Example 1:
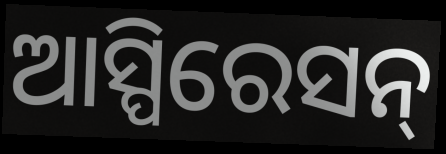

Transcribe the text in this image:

ଆସ୍ପିରେସନ୍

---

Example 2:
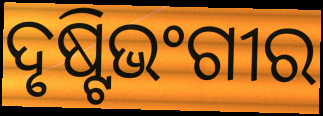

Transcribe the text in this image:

ଦୃଷ୍ଟିଭଂଗୀର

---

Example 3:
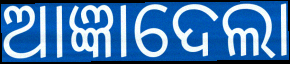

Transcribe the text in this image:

ଆଜ୍ଞାଦେଲା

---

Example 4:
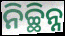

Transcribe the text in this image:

ନିଚ୍ଛିନ୍ନ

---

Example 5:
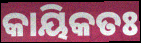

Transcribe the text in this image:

କାୟିକତଃ